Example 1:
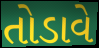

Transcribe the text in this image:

તોડાવે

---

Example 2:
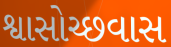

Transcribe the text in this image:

શ્વાસોચ્છવાસ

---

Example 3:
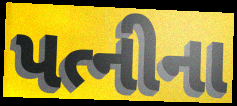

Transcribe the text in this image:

પત્નીના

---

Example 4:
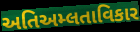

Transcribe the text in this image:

અતિઅમ્લતાવિકાર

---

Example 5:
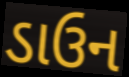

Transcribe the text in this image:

ડાઉન